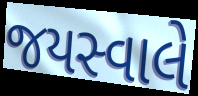
જયસ્વાલે